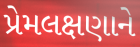
પ્રેમલક્ષણાને